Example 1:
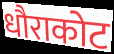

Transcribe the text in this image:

धौराकोट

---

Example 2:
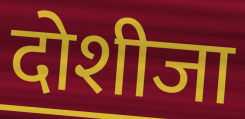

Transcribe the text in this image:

दोशीजा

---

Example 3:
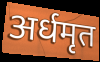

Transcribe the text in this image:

अर्धमृत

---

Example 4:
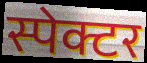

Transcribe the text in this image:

स्पेक्टर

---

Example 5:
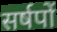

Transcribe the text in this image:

सर्षपों